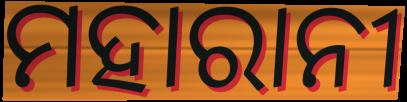
ମହାରାନୀ